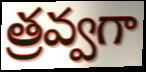
త్రవ్వగా